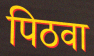
पिठवा